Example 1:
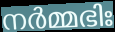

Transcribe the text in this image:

നർമ്മഭിഃ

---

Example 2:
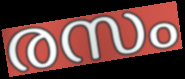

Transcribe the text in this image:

രസം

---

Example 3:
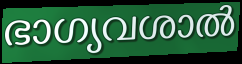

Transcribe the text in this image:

ഭാഗ്യവശാൽ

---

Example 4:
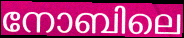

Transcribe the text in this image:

നോബിലെ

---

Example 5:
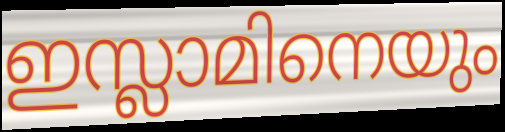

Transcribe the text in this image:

ഇസ്ലാമിനെയും